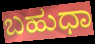
ಬಹುಧಾ